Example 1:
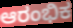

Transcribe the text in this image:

ಆರಂಭಿಕ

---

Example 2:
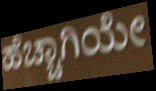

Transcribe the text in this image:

ಹೆಚ್ಚಾಗಿಯೇ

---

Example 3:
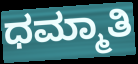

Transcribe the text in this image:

ಧಮ್ಮಾತಿ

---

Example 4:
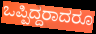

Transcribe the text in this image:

ಒಪ್ಪಿದ್ದರಾದರೂ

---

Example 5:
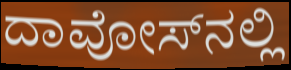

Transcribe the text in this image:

ದಾವೋಸ್‌ನಲ್ಲಿ